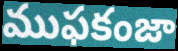
ముఫకంజా